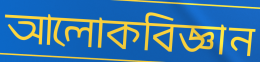
আলোকবিজ্ঞান